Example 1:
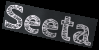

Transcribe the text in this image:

Seeta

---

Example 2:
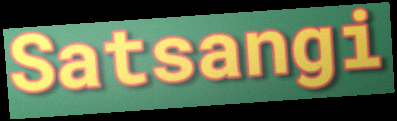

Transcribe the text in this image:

Satsangi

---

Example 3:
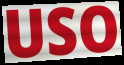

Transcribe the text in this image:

USO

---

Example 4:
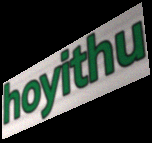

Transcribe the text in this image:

hoyithu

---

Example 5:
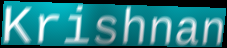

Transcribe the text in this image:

Krishnan